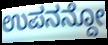
ಉಪನನ್ದೋ